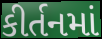
કીર્તનમાં